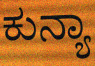
ಕುನ್ಯಾ